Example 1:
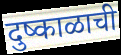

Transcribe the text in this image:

दुष्काळाची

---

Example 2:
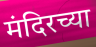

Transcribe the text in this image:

मंदिरच्या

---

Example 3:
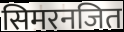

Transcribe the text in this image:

सिमरनजित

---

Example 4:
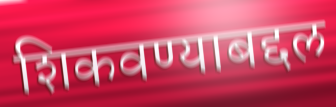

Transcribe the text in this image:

शिकवण्याबद्दल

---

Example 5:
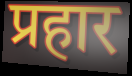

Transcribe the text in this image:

प्रहार